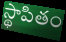
స్థాపితం